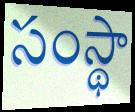
సంస్థా